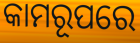
କାମରୂପରେ